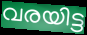
വരയിട്ട